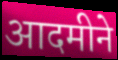
आदमीने